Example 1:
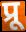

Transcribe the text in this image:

प्रू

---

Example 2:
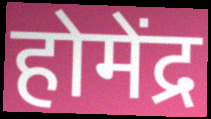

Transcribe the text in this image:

होमेंद्र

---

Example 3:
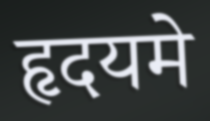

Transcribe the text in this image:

हृदयमे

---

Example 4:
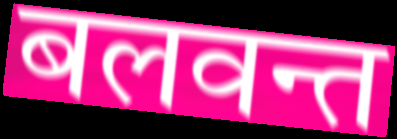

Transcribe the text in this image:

बलवन्त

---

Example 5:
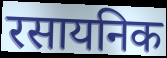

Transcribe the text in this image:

रसायनिक